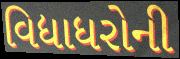
વિદ્યાધરોની